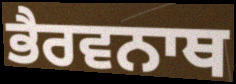
ਭੈਰਵਨਾਥ